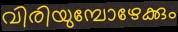
വിരിയുമ്പോഴേക്കും